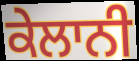
ਕੇਲਾਨੀ